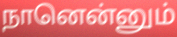
நானென்னும்